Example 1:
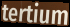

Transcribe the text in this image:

tertium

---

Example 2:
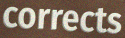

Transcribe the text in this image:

corrects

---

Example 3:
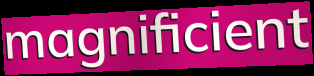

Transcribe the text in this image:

magnificient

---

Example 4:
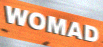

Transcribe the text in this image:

WOMAD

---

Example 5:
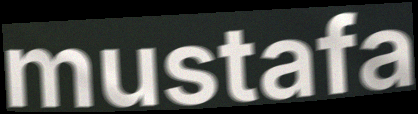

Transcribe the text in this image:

mustafa